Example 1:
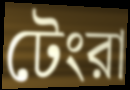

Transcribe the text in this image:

টেংরা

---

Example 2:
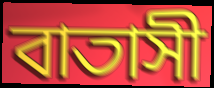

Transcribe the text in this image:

বাতাসী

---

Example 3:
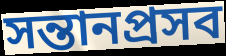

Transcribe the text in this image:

সন্তানপ্রসব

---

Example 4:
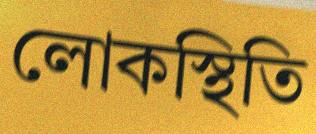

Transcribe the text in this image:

লোকস্থিতি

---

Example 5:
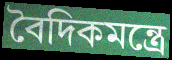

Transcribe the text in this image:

বৈদিকমন্ত্রে